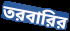
তরবারির